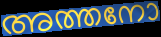
അത്തനോ